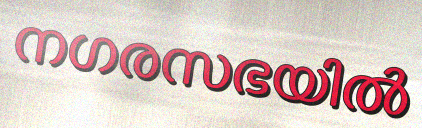
നഗരസഭയിൽ